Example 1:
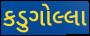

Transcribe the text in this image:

કડુગોલ્લા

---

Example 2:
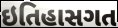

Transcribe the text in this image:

ઇતિહાસગત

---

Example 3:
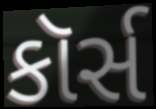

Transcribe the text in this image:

કૉર્સ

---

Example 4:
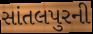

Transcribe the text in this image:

સાંતલપુરની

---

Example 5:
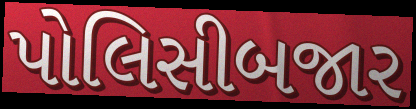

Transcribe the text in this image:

પોલિસીબજાર